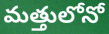
మత్తులోనో